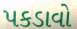
પકડાવો